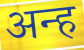
अन्ह